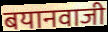
बयानवाजी